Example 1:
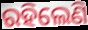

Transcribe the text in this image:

ରହିଲେଣି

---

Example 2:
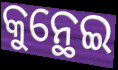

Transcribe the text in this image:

କୁନ୍ଥେଇ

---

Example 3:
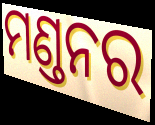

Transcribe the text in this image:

ମଣ୍ଡନର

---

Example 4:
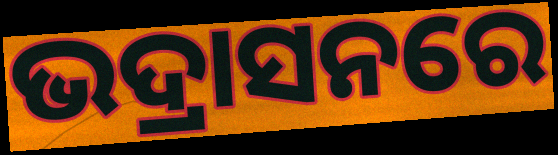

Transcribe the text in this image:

ଭଦ୍ରାସନରେ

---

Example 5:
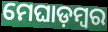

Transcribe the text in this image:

ମେଘାଡ଼ମ୍ବର